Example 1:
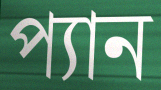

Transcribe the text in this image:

প্যান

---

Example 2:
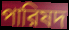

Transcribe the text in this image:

পারিষদ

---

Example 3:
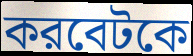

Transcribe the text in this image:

করবেটকে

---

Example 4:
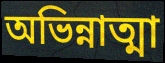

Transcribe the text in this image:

অভিন্নাত্মা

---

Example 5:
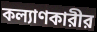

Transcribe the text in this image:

কল্যাণকারীর